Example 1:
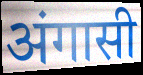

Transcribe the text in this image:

अंगासी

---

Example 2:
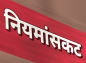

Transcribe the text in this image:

नियमांसकट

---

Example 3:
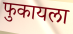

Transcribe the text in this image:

फुकायला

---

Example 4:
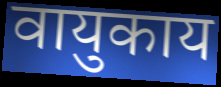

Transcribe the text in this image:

वायुकाय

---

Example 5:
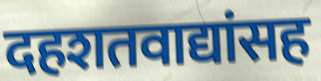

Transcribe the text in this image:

दहशतवाद्यांसह